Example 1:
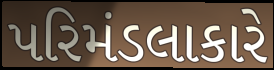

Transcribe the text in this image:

પરિમંડલાકારે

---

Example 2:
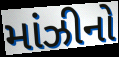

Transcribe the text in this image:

માંઝીનો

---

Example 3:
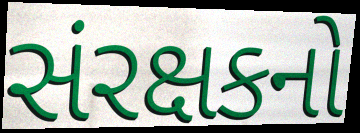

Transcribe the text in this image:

સંરક્ષકનો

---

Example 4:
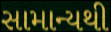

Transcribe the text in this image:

સામાન્યથી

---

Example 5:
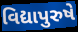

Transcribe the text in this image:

વિદ્યાપુરુષે